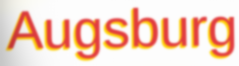
Augsburg